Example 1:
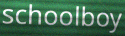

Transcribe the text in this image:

schoolboy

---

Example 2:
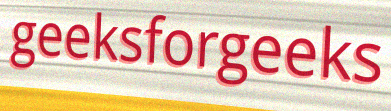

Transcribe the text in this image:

geeksforgeeks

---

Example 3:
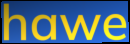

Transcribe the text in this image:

hawe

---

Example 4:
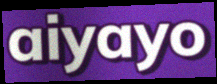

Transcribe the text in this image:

aiyayo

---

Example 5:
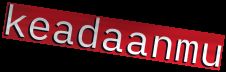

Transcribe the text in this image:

keadaanmu